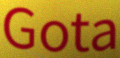
Gota